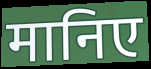
मानिए